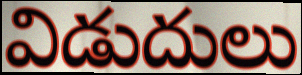
విడుదులు